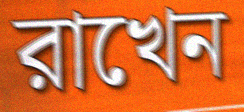
রাখেন